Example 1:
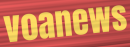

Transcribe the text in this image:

voanews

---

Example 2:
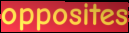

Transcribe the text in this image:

opposites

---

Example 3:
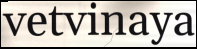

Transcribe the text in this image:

vetvinaya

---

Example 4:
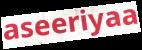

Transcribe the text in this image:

aseeriyaa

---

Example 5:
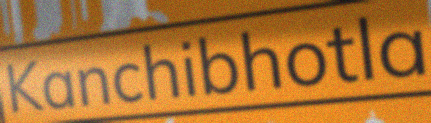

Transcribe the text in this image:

Kanchibhotla